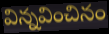
విన్నవించినం